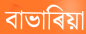
বাভাৰিয়া